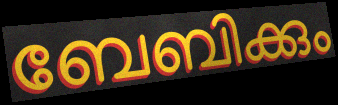
ബേബിക്കും